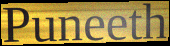
Puneeth